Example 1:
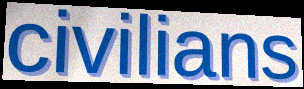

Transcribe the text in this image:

civilians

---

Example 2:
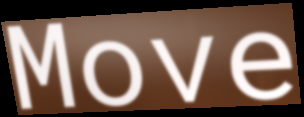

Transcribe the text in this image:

Move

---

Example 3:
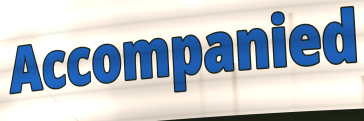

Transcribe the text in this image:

Accompanied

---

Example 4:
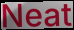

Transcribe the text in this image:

Neat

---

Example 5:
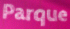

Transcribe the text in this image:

Parque